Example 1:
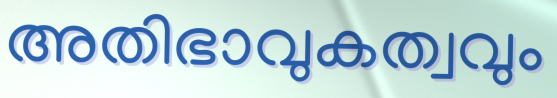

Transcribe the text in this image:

അതിഭാവുകത്വവും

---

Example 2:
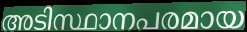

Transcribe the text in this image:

അടിസ്ഥാനപരമായ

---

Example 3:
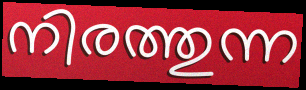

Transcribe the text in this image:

നിരത്തുന്ന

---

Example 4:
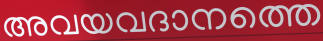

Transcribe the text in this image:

അവയവദാനത്തെ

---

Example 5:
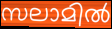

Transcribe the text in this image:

സലാമിൽ